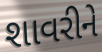
શાવરીને